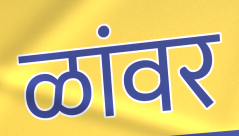
ळांवर